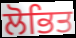
ਲੋਭਿਤ